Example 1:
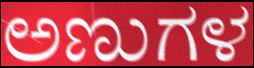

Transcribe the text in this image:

ಅಣುಗಳ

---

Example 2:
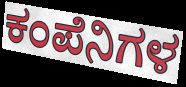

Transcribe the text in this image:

ಕಂಪೆನಿಗಳ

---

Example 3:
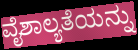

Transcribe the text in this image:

ವೈಶಾಲ್ಯತೆಯನ್ನು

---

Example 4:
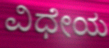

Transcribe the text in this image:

ವಿಧೇಯ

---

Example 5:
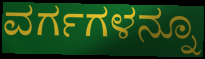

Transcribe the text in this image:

ವರ್ಗಗಳನ್ನೂ